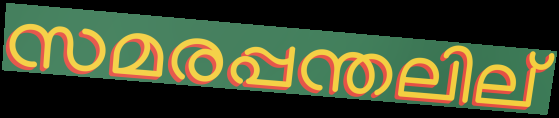
സമരപ്പന്തലില്